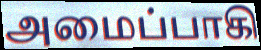
அமைப்பாகி